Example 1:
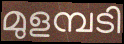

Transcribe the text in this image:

മുളമ്പടി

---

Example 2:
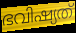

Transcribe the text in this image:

ഭവിഷ്യത്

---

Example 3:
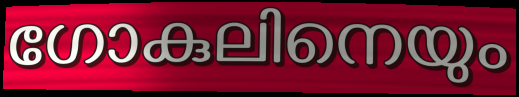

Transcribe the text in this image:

ഗോകുലിനെയും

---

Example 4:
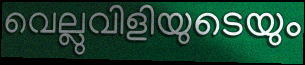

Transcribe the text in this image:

വെല്ലുവിളിയുടെയും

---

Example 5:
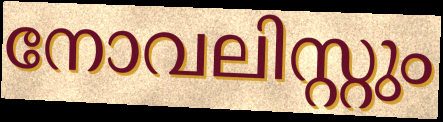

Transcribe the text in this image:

നോവലിസ്റ്റും